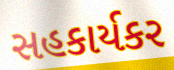
સહકાર્યકર